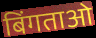
बिंगताओ